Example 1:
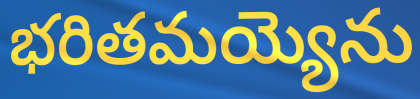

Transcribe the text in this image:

భరితమయ్యెను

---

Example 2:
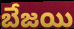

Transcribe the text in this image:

బేజయి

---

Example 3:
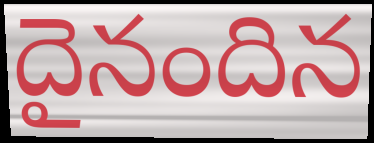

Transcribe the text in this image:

దైనందిన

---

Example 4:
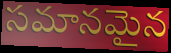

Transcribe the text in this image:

సమానమైన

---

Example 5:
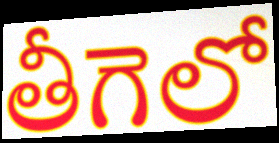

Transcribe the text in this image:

తీగెలో